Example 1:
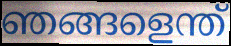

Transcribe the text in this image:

ഞങ്ങളെന്ത്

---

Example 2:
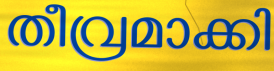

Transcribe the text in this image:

തീവ്രമാക്കി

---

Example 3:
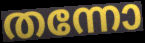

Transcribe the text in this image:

തന്നോ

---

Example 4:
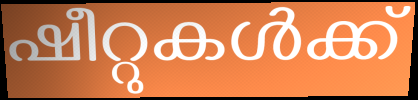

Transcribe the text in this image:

ഷീറ്റുകൾക്ക്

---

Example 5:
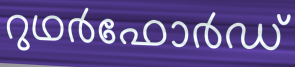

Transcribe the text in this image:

റുഥർഫോർഡ്